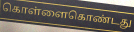
கொள்ளைகொண்டது